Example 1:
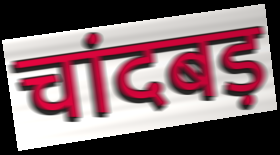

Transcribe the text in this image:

चांदबड़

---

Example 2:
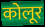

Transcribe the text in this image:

कोलूर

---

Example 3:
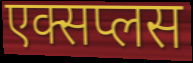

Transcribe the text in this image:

एक्सप्लस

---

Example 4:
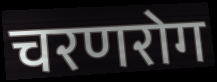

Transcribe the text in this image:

चरणरोग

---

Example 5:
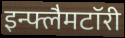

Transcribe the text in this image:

इन्फ्लैमटॉरी